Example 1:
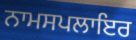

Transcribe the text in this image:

ਨਾਮਸਪਲਾਇਰ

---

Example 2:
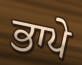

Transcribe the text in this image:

ਭਾਪੇ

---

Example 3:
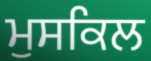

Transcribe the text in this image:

ਮੁਸਕਿਲ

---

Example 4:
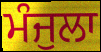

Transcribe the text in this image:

ਮੰਜੁਲਾ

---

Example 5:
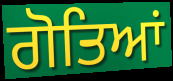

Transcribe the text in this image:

ਗੋਤਿਆਂ